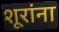
शूरांना